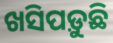
ଖସିପଡ଼ୁଛି